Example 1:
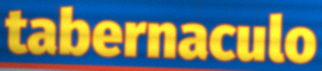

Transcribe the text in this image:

tabernaculo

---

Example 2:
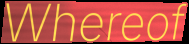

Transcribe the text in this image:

Whereof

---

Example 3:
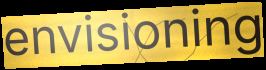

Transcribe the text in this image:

envisioning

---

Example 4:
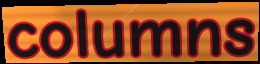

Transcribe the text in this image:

columns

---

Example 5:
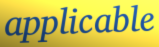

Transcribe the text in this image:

applicable